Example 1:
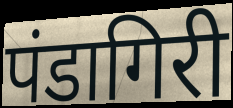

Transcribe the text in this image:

पंडागिरी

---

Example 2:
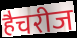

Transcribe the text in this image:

हैचरीज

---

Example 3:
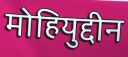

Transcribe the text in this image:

मोहियुद्दीन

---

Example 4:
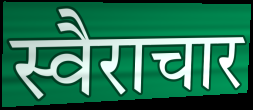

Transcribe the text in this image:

स्वैराचार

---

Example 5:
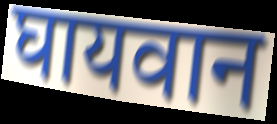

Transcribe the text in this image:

घायवान